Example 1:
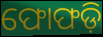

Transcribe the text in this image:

ଫୋଫଡ଼ି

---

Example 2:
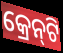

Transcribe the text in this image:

କ୍ରେନ୍‍ଟି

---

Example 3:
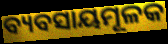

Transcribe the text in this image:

ବ୍ୟବସାୟମୂଳକ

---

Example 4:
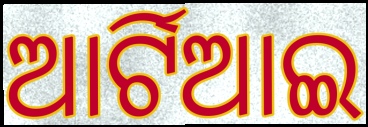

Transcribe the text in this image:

ଆର୍ଟିଆଇ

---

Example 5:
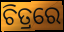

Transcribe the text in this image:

ଚିତ୍ରରେ